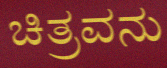
ಚಿತ್ರವನು